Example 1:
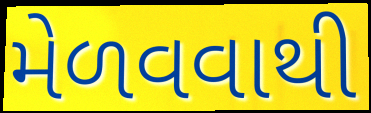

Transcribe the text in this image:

મેળવવાથી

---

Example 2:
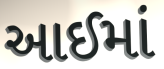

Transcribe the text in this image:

આઈમાં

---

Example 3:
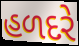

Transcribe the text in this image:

હળદરે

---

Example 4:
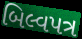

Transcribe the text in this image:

બિલ્વપત્ર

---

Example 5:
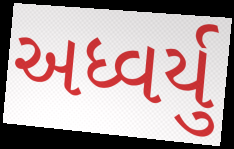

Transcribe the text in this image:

અધ્વર્યુ